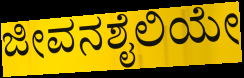
ಜೀವನಶೈಲಿಯೇ